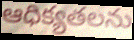
ఆధిక్యతలను